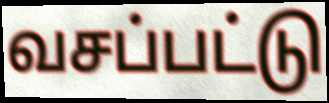
வசப்பட்டு